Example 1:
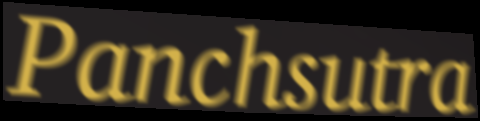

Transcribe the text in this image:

Panchsutra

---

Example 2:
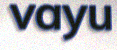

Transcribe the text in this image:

vayu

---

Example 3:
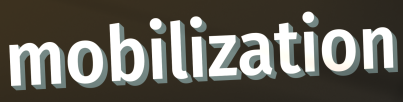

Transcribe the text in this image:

mobilization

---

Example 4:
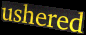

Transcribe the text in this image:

ushered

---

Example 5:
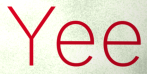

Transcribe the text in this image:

Yee